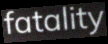
fatality